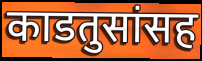
काडतुसांसह